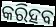
କରିହବ